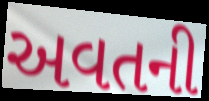
અવતની